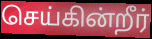
செய்கின்றீர்